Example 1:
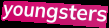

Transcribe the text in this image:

youngsters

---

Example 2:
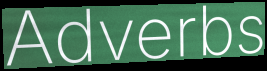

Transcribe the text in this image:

Adverbs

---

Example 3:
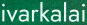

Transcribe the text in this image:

ivarkalai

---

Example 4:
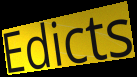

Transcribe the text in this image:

Edicts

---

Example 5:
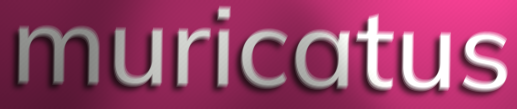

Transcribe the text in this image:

muricatus